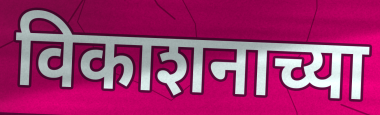
विकाशनाच्या